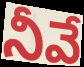
నీవే